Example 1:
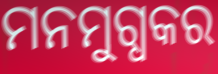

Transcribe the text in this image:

ମନମୁଗ୍ଧକର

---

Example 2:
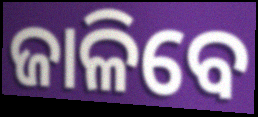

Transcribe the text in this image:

ଜାଳିବେ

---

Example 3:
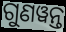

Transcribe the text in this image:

ଗୁଣୱନ୍ତ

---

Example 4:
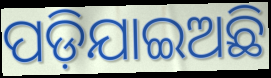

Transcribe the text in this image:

ପଡ଼ିଯାଇଅଛି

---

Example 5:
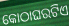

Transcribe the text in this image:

କୋଠାଘରଟିଏ